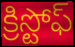
క్రిస్టోఫ్